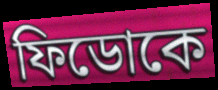
ফিডোকে